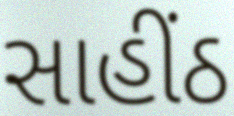
સાહીંઠ